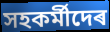
সহকৰ্মীদেৰ